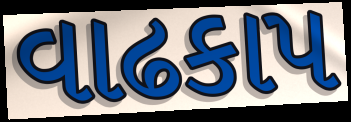
વાઢકાપ